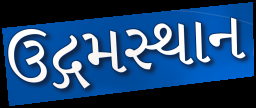
ઉદ્ગમસ્થાન